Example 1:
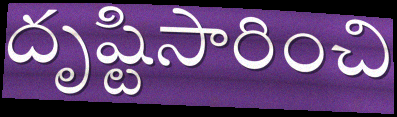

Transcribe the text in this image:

దృష్టిసారించి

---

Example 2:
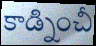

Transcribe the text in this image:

కాడ్నించీ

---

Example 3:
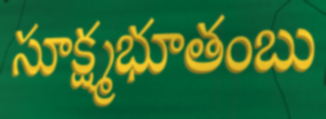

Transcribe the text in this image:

సూక్ష్మభూతంబు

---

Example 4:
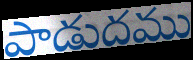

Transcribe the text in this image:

పాడుదము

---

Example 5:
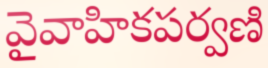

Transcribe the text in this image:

వైవాహికపర్వణి